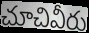
చూచివీరు